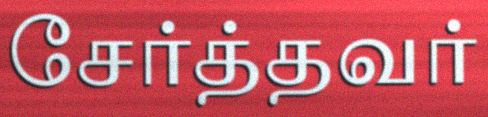
சேர்த்தவர்